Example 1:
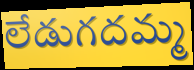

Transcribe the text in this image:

లేడుగదమ్మ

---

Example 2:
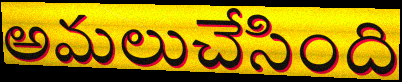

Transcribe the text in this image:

అమలుచేసింది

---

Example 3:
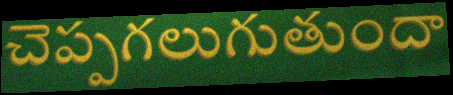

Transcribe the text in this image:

చెప్పగలుగుతుందా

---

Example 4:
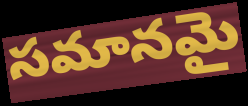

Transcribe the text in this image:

సమానమై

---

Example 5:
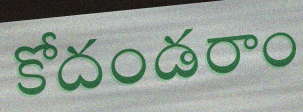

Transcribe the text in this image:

కోదండరాం